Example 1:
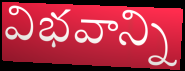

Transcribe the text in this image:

విభవాన్ని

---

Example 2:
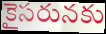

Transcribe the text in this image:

కైసరునకు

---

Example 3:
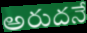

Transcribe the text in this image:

అరుదనే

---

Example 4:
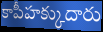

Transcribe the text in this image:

కాపీహక్కుదారు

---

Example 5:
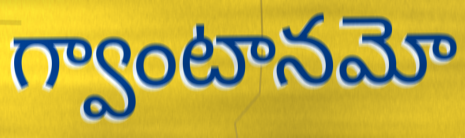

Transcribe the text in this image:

గ్వాంటానమో